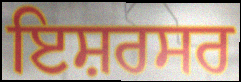
ਇਸ਼ਰਸਰ